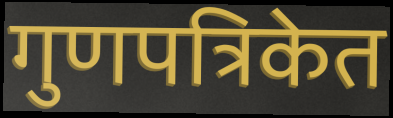
गुणपत्रिकेत